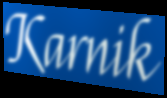
Karnik